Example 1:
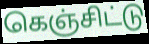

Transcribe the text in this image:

கெஞ்சிட்டு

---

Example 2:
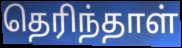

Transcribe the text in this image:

தெரிந்தாள்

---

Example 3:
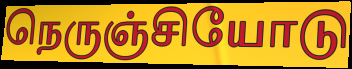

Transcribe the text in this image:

நெருஞ்சியோடு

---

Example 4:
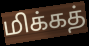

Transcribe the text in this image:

மிக்கத்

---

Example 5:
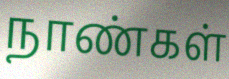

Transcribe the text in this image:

நாண்கள்